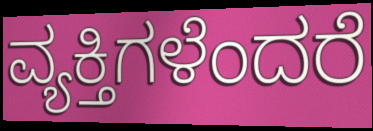
ವ್ಯಕ್ತಿಗಳೆಂದರೆ